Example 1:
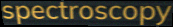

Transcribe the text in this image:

spectroscopy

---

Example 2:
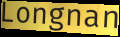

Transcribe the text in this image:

Longnan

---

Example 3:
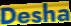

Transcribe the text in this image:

Desha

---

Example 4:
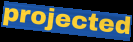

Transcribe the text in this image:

projected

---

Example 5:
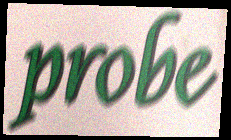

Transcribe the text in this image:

probe